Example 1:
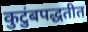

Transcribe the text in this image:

कुटुंबपद्धतीत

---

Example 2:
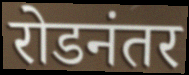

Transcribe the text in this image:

रोडनंतर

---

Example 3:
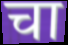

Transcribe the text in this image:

चा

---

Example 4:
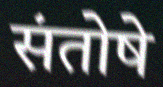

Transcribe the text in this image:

संतोषे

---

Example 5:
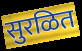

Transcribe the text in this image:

सुरळित